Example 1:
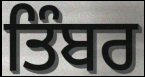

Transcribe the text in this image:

ਤਿੰਬਰ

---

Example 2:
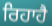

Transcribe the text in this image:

ਰਿਹਾਹੈ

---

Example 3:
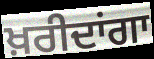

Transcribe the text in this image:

ਖ਼ਰੀਦਾਂਗਾ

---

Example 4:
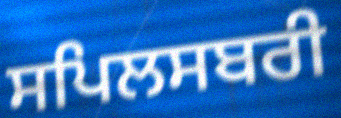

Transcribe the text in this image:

ਸਪਿਲਸਬਰੀ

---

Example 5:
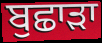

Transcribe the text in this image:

ਬੁਛਾੜਾ